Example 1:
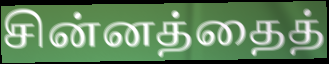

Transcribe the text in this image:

சின்னத்தைத்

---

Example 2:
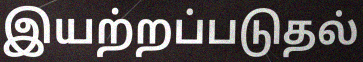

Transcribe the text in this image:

இயற்றப்படுதல்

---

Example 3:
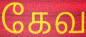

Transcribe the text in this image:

கேவ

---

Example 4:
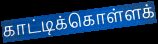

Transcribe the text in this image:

காட்டிக்கொள்ளக்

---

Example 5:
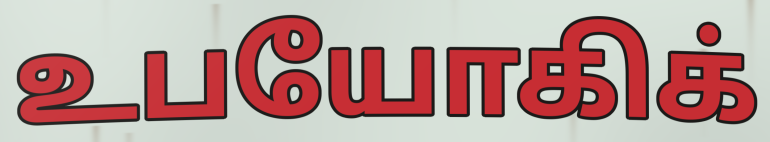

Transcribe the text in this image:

உபயோகிக்